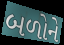
બળોને